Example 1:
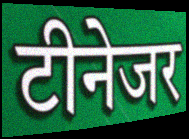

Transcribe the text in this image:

टीनेजर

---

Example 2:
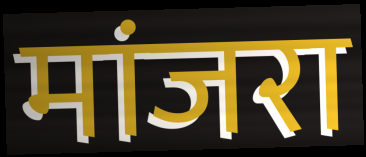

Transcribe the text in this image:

मांजरा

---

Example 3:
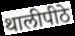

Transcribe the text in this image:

थालीपीठे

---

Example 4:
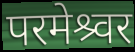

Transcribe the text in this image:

परमेश्र्वर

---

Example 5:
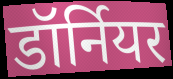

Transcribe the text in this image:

डॉर्नियर